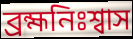
ব্রহ্মনিঃশ্বাস